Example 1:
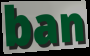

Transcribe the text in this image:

ban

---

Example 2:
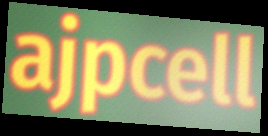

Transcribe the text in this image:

ajpcell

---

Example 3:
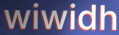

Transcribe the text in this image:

wiwidh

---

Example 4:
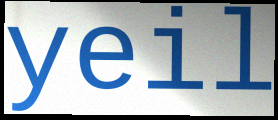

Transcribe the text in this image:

yeil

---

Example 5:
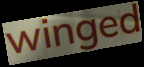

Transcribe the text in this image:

winged